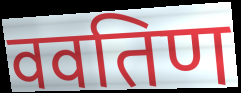
ववतिण